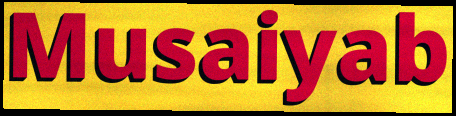
Musaiyab